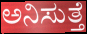
ಅನಿಸುತ್ತೆ